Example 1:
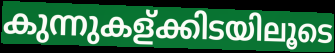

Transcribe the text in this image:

കുന്നുകള്ക്കിടയിലൂടെ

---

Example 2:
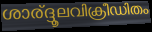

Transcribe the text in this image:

ശാര്ദ്ദൂലവിക്രീഡിതം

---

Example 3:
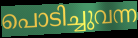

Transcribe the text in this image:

പൊടിച്ചുവന്ന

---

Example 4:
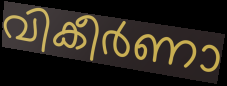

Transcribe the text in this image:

വികീർണാ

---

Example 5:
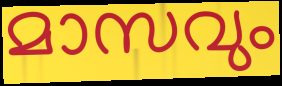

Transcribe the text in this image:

മാസവും